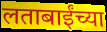
लताबाईंच्या